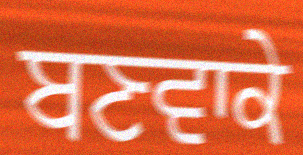
ਬਣਵਾਕੇ